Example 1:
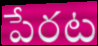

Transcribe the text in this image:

పేరట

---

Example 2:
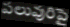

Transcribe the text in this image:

పలువురిపై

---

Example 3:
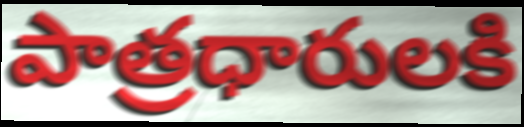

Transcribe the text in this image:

పాత్రధారులకి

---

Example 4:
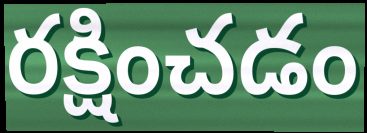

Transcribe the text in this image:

రక్షించడం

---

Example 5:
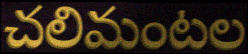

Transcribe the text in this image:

చలిమంటల